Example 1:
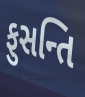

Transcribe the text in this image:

ફુસન્તિ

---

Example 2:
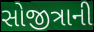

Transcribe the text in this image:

સોજીત્રાની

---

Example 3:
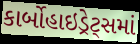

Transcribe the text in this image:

કાર્બોહાઇડ્રેટ્સમાં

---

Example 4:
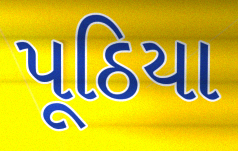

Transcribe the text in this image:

પૂઠિયા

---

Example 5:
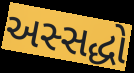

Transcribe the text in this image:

અસ્સદ્ધો